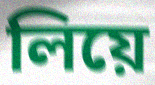
লিয়ে